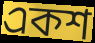
একশ